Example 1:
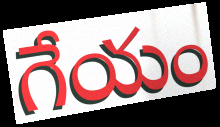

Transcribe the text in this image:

గేయం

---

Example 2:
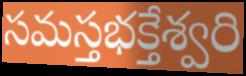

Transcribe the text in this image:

సమస్తభక్తేశ్వరి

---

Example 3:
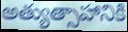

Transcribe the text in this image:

అత్యుత్సాహానికి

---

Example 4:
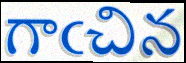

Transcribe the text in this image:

గాఁచిన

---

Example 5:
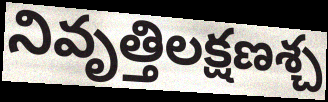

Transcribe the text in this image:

నివృత్తిలక్షణశ్చ